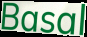
Basal